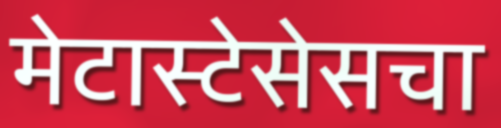
मेटास्टेसेसचा